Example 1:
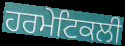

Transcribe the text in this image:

ਹਰਮੇਟਿਕਲੀ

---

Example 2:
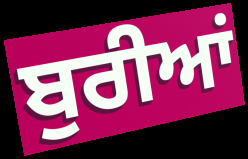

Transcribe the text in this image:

ਬੁਰੀਆਂ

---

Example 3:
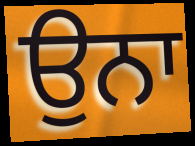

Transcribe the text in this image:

ਉਨਾ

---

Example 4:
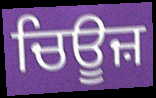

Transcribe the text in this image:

ਚਿਊਜ਼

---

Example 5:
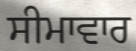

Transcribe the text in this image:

ਸੀਮਾਵਾਰ